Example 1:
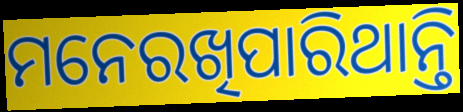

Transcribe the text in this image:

ମନେରଖିପାରିଥାନ୍ତି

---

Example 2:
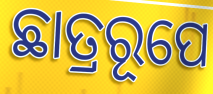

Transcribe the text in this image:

ଛାତ୍ରରୂପେ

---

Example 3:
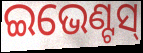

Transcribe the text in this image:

ଇଭେଣ୍ଟସ୍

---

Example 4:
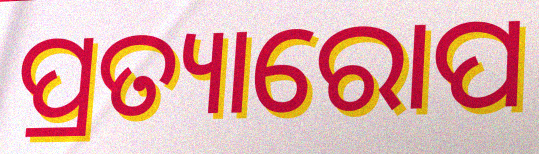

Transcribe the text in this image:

ପ୍ରତ୍ୟାରୋପ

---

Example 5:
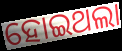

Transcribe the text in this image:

ହୋଇଥଲା